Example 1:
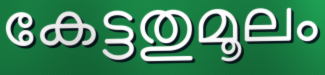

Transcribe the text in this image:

കേട്ടതുമൂലം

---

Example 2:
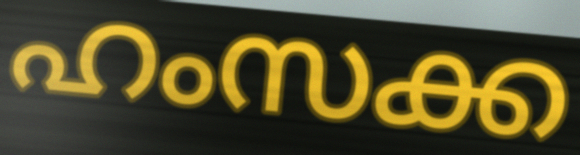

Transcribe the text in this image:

ഹംസക്ക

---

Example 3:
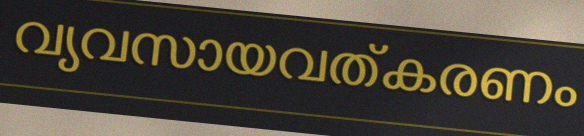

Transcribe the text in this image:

വ്യവസായവത്കരണം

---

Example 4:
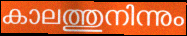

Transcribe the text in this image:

കാലത്തുനിന്നും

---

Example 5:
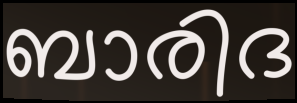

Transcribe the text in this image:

ബാരിദ